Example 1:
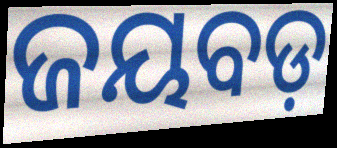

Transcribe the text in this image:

ଜୟବଡ଼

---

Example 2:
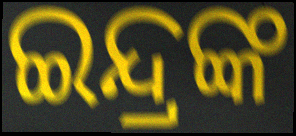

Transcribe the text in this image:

ଇନ୍ଦ୍ରଙ୍କ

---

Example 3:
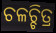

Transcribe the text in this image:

ଚଳଚ୍ଚିତ୍ର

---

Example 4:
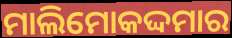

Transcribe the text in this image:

ମାଲିମୋକଦ୍ଦମାର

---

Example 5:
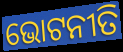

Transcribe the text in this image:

ଭୋଟନୀତି